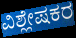
ವಿಶ್ಲೇಷಕರ